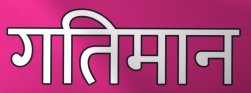
गतिमान